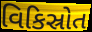
વિકિસ્રોત